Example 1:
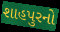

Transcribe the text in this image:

શાહપુરનો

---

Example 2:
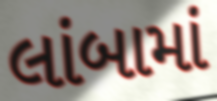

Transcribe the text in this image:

લાંબામાં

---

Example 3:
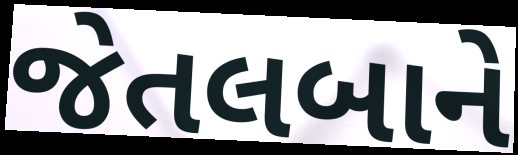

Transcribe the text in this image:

જેતલબાને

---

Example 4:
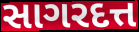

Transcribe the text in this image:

સાગરદત્ત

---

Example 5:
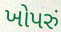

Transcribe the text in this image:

ખોપરું